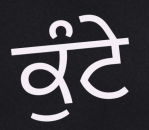
ਕੁੰਟੇ